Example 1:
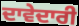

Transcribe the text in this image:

ਦਾਵੇਦਾਰੀ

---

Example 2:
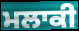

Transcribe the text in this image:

ਮਲਾਕੀ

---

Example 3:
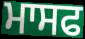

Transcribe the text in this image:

ਮਾਸਫ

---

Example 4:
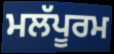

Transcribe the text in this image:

ਮਲੱਪੂਰਮ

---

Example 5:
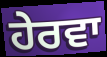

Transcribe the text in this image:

ਹੇਰਵਾ